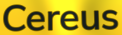
Cereus